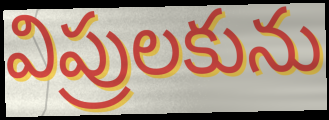
విప్రులకును